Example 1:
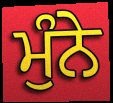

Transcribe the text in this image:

ਮੁੰਨੇ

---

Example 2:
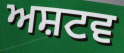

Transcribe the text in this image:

ਅਸ਼ਟਵ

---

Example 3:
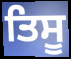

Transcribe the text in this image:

ਤਿਸੂ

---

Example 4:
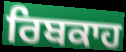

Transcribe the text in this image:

ਰਿਬਕਾਹ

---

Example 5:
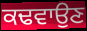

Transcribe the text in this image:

ਕਢਵਾਉਣ